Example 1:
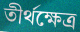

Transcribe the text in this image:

তীর্থক্ষেত্র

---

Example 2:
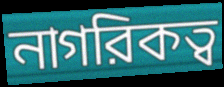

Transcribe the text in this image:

নাগরিকত্ব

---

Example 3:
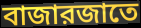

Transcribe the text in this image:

বাজারজাতে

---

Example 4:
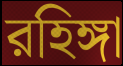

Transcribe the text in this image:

রহিঙ্গা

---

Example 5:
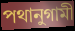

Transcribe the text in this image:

পথানুগামী